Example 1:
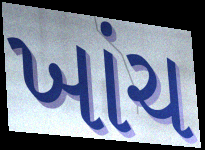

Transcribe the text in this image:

ખાંચ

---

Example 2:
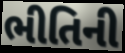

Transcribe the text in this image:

ભીતિની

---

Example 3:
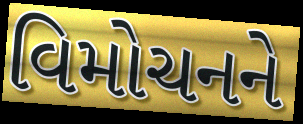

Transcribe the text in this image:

વિમોચનને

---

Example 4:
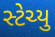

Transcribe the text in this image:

સ્ટેચ્યુ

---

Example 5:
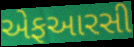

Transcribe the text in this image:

એફઆરસી